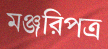
মঞ্জরিপত্র